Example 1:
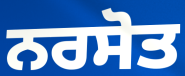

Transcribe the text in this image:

ਨਰਸੋਤ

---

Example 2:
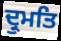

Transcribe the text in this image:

ਦ੍ਰੁਮਤਿ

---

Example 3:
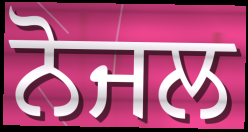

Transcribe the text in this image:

ਨੋਜਲ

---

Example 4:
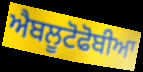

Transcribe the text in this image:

ਐਬਲੂਟੋਫੋਬੀਆ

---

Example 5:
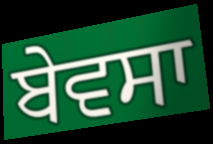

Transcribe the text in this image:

ਬੇਵਸਾ